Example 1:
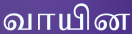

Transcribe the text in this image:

வாயின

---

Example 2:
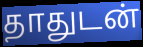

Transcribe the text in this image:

தாதுடன்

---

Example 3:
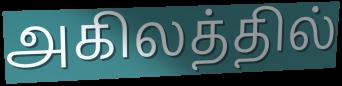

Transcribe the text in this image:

அகிலத்தில்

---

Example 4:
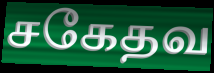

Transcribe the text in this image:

சகேதவ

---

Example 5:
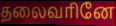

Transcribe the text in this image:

தலைவரினே